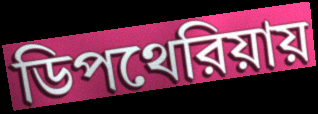
ডিপথেরিয়ায়